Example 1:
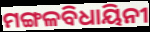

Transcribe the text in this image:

ମଙ୍ଗଳବିଧାୟିନୀ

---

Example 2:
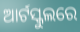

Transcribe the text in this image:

ଆର୍ଟସ୍କୁଲରେ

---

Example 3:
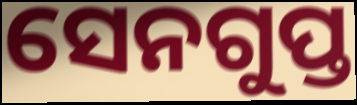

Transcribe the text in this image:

ସେନଗୁପ୍ତ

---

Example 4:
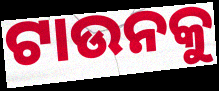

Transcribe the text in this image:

ଟାଉନକୁ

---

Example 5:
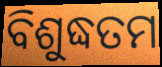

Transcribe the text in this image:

ବିଶୁଦ୍ଧତମ